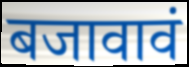
बजावावं